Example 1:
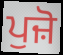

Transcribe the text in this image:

ਪੁਜ਼ੋ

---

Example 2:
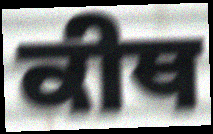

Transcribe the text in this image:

ਕੀਥ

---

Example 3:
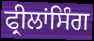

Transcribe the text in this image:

ਫ੍ਰੀਲਾਂਸਿੰਗ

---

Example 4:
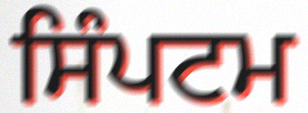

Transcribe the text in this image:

ਸਿੰਪਟਮ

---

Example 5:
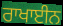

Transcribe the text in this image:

ਰਾਖਾਈਨ